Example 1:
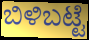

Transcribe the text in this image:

ಬಿಳಿಬಟ್ಟೆ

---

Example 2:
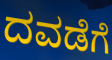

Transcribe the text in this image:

ದವಡೆಗೆ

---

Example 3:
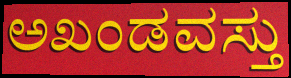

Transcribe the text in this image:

ಅಖಂಡವಸ್ತು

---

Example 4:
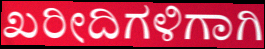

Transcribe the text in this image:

ಖರೀದಿಗಳಿಗಾಗಿ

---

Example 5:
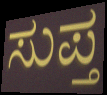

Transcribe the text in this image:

ಸುಪ್ತ